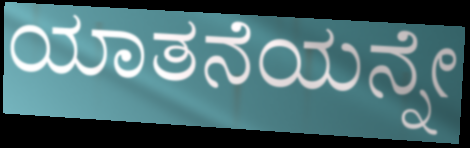
ಯಾತನೆಯನ್ನೇ